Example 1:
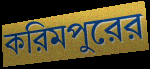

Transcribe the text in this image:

করিমপুরের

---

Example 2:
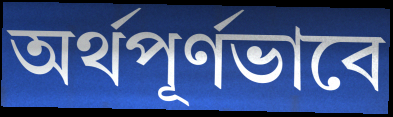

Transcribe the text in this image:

অর্থপূর্ণভাবে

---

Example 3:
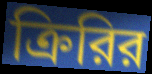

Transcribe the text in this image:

ক্রিরির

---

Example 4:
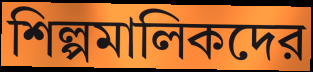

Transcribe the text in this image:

শিল্পমালিকদের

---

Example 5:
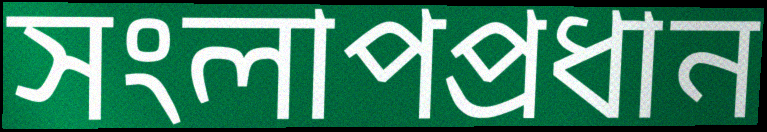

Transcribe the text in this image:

সংলাপপ্রধান